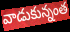
వాడుకున్నంత